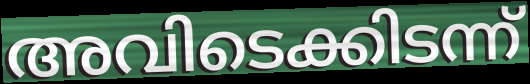
അവിടെക്കിടന്ന്